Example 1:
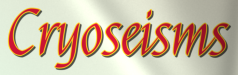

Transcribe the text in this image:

Cryoseisms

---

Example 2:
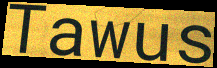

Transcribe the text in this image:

Tawus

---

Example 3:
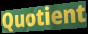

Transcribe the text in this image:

Quotient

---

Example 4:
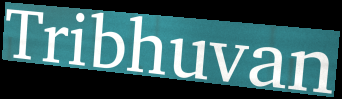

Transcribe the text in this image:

Tribhuvan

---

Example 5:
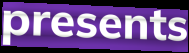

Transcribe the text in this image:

presents